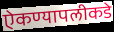
ऐकण्यापलीकडे